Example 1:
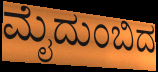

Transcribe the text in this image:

ಮೈದುಂಬಿದ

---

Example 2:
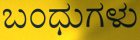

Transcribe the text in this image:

ಬಂಧುಗಳು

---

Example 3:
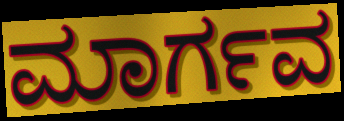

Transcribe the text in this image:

ಮಾರ್ಗವ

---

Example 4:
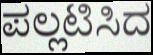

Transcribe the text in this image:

ಪಲ್ಲಟಿಸಿದ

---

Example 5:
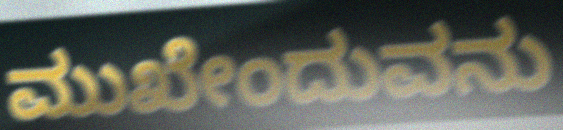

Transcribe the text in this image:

ಮುಖೇಂದುವನು